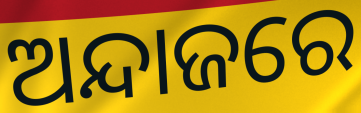
ଅନ୍ଦାଜରେ